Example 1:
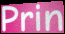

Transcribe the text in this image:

Prin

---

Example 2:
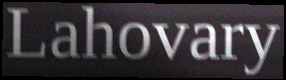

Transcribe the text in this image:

Lahovary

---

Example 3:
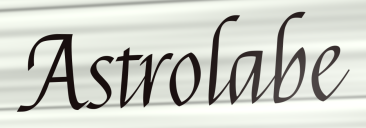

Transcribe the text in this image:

Astrolabe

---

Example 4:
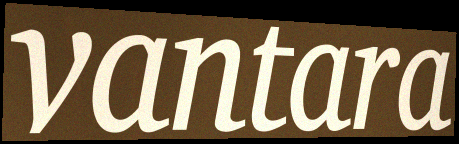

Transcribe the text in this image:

vantara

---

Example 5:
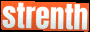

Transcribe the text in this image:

strenth